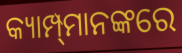
କ୍ୟାମ୍ପ୍‍ମାନଙ୍କରେ